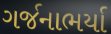
ગર્જનાભર્યા